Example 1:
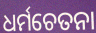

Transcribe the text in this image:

ଧର୍ମଚେତନା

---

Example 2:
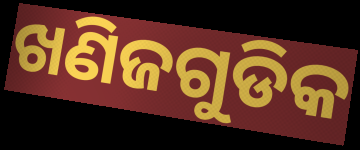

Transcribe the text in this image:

ଖଣିଜଗୁଡିକ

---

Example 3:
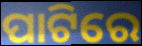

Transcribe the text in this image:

ପାଟିରେ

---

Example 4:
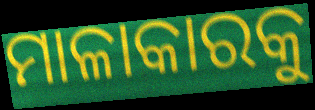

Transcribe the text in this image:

ମାଳାକାରକୁ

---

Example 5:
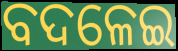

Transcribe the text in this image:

ବଦଳେଇ